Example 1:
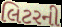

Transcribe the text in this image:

લિટરની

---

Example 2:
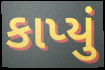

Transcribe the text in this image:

કાપ્યું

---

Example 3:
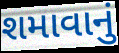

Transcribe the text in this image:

શમાવાનું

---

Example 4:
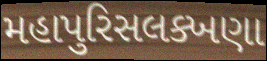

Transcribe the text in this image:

મહાપુરિસલક્ખણા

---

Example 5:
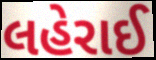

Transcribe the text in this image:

લહેરાઈ